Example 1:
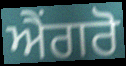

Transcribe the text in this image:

ਐਂਗਰੋ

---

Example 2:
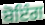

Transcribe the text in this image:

ਬੋਇੰਗ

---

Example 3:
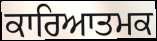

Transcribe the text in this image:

ਕਾਰਿਆਤਮਕ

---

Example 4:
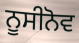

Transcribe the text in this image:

ਨੂਸੀਨੋਵ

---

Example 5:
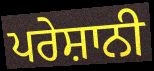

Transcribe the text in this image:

ਪਰੇਸ਼ਾਨੀ